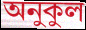
অনুকুল